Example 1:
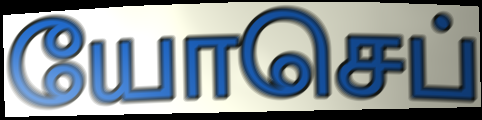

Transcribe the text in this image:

யோசெப்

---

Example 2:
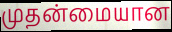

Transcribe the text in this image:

முதன்மையான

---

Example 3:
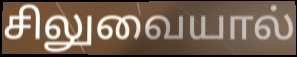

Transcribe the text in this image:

சிலுவையால்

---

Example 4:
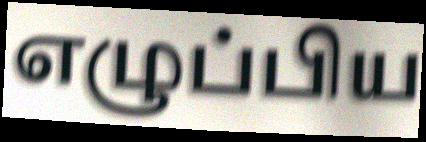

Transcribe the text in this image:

எழுப்பிய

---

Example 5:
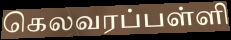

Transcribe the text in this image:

கெலவரப்பள்ளி